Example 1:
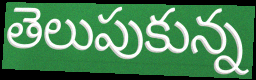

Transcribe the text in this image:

తెలుపుకున్న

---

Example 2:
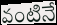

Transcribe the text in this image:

వంటినే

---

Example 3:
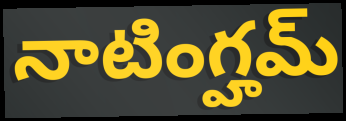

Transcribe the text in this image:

నాటింగ్హమ్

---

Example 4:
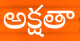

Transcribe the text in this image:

అక్షతా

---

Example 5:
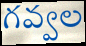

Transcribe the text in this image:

గవ్వల